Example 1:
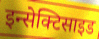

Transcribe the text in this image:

इन्सेक्टिसाइड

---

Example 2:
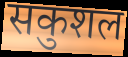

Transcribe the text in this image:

सकुशल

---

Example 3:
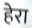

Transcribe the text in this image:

हेरा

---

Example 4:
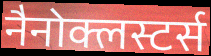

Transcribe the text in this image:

नैनोक्लस्टर्स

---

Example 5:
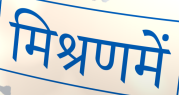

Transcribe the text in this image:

मिश्रणमें